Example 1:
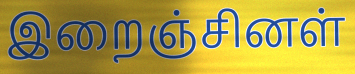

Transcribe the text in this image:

இறைஞ்சினள்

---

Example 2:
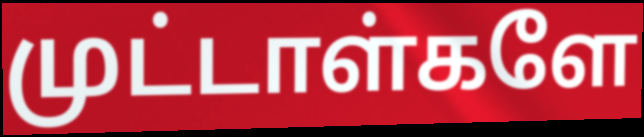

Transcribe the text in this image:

முட்டாள்களே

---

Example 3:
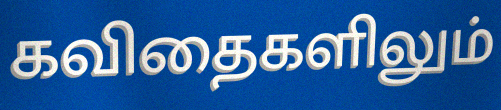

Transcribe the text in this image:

கவிதைகளிலும்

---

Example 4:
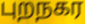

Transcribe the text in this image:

புறநகர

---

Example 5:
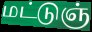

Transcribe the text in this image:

மட்டுஞ்